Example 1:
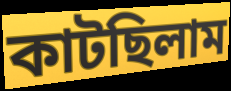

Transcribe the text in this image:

কাটছিলাম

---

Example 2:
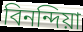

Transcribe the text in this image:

বিনন্দিয়া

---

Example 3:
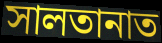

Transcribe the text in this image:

সালতানাত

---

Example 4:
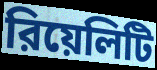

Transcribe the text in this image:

রিয়েলিটি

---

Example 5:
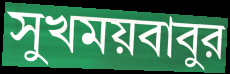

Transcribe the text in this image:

সুখময়বাবুর